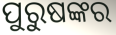
ପୁରୁଷଙ୍କର